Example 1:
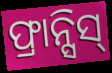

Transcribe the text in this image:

ଫ୍ରାନ୍ସିସ୍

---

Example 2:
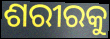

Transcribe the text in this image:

ଶରୀରକୁ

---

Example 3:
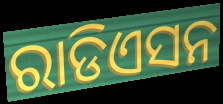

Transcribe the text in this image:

ରାଡିଏସନ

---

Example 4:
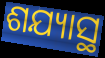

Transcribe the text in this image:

ଶଯ୍ୟାସ୍ଥ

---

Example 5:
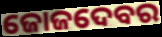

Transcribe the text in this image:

ଜୋଜଦେବର